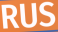
RUS